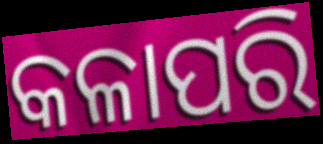
କଳାପରି